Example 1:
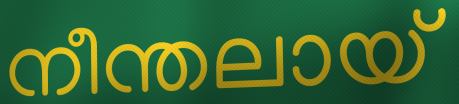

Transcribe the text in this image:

നീന്തലായ്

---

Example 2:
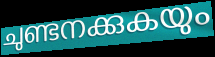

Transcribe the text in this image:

ചുണ്ടനക്കുകയും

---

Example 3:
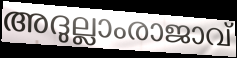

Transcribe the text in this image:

അദുല്ലാംരാജാവ്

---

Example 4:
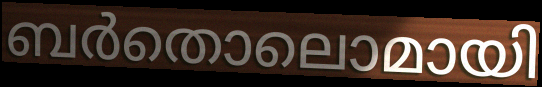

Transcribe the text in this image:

ബർതൊലൊമായി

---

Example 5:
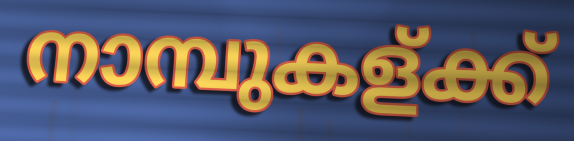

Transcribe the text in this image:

നാമ്പുകള്ക്ക്